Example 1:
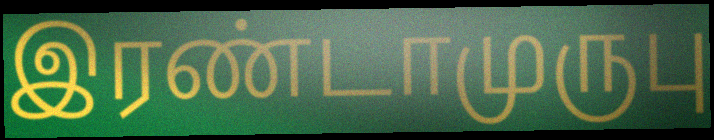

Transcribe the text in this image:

இரண்டாமுருபு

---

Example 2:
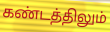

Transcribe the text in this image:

கண்டத்திலும்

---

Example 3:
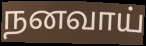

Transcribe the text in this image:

நனவாய்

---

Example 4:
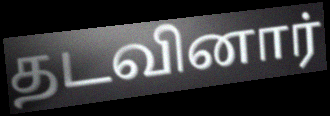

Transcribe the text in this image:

தடவினார்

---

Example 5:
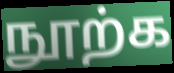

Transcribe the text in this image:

நூற்க